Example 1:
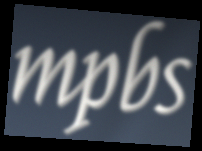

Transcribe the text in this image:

mpbs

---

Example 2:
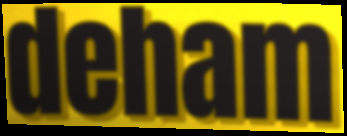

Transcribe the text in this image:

deham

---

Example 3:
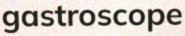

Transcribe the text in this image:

gastroscope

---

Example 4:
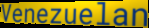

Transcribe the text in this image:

Venezuelan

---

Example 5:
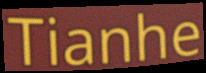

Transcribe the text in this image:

Tianhe